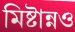
মিষ্টান্নও